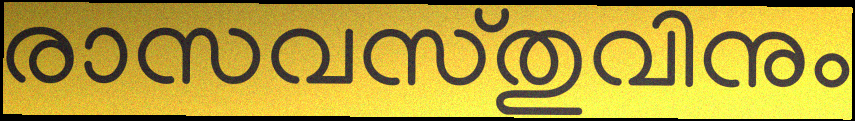
രാസവസ്തുവിനും